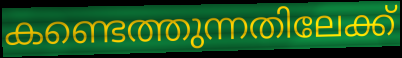
കണ്ടെത്തുന്നതിലേക്ക്